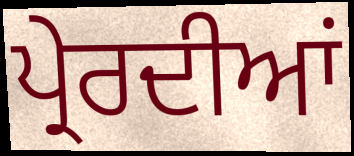
ਪ੍ਰੇਰਦੀਆਂ